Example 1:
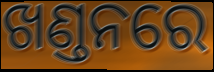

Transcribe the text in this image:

ଖଣ୍ଡନରେ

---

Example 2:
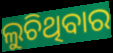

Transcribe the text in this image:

ଲୁଚିଥିବାର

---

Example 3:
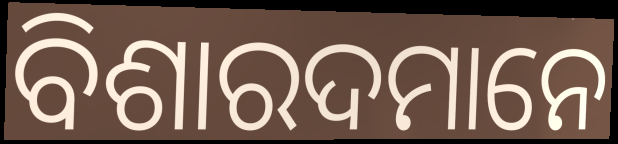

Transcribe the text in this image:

ବିଶାରଦମାନେ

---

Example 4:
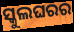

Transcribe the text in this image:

ସ୍କୁଲଘରର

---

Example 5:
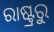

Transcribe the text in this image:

ରାଷ୍ଟ୍ରରୁ